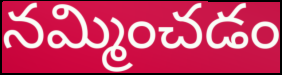
నమ్మించడం